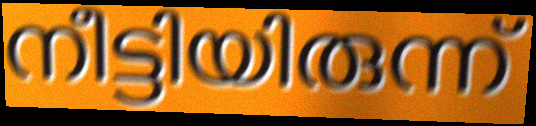
നീട്ടിയിരുന്ന്